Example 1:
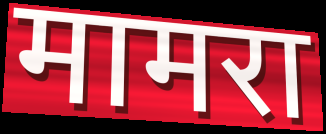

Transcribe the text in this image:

मामरा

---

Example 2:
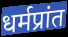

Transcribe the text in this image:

धर्मप्रांत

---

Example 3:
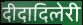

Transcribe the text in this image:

दीदादिलेरी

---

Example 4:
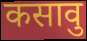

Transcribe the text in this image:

कसावु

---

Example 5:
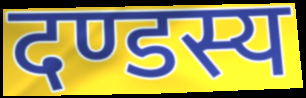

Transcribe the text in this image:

दण्डस्य